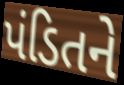
પંડિતને